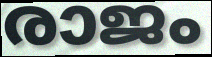
രാജം